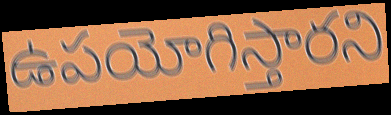
ఉపయోగిస్తారని